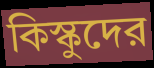
কিস্কুদের